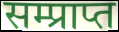
सम्प्राप्त